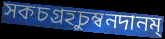
সকচগ্রহচুম্বনদানম্